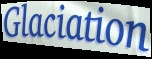
Glaciation